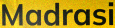
Madrasi